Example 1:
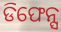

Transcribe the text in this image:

ଡିଫେନ୍ସ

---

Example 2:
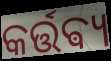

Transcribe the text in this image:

କର୍ତ୍ତଵ୍ୟ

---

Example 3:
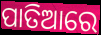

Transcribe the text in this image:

ପାତିଆରେ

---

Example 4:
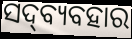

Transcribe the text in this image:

ସଦ୍‍ବ୍ୟବହାର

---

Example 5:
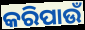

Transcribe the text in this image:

କରିପାଉଁ